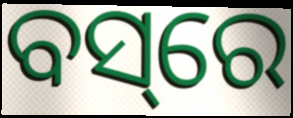
ବସ୍‌ରେ